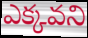
ఎక్కవని